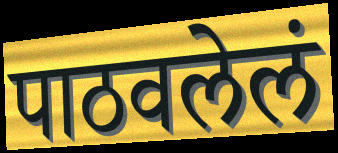
पाठवलेलं